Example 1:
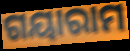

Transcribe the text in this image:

ଗୟାରାମ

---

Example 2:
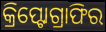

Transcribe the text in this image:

କ୍ରିପ୍ଟୋଗ୍ରାଫିର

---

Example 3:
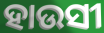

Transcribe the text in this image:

ହାଉସୀ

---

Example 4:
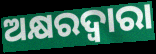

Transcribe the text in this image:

ଅକ୍ଷରଦ୍ଵାରା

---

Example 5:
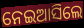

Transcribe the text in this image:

ନେଇଆସିଲେ